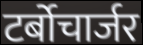
टर्बोचार्जर